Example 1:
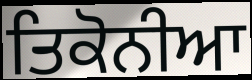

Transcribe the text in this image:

ਤਿਕੋਨੀਆ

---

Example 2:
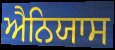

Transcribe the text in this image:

ਐਨਿਯਾਸ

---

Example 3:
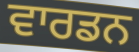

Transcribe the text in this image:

ਵਾਰਡਨ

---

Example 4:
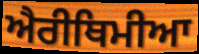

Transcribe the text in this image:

ਐਰੀਥਿਮੀਆ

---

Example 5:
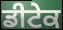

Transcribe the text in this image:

ਡੀਟੇਕ